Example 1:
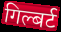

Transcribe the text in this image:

गिल्बर्ट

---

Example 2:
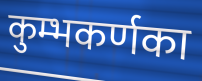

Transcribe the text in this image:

कुम्भकर्णका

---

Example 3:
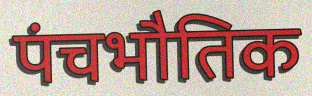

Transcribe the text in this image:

पंचभौतिक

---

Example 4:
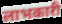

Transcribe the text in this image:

लाभकारी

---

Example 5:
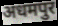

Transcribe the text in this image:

अधमपुर